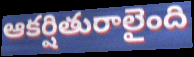
ఆకర్షితురాలైంది